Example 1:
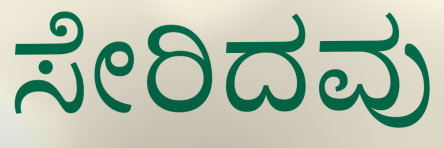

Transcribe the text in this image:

ಸೇರಿದವು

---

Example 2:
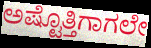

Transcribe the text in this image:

ಅಷ್ಟೊತ್ತಿಗಾಗಲೇ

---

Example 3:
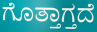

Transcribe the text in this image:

ಗೊತ್ತಾಗ್ತದೆ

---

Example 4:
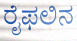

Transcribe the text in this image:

ರೈಫಲಿನ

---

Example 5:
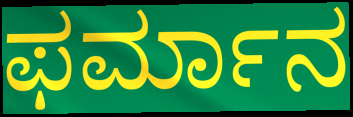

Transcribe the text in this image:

ಫರ್ಮಾನ